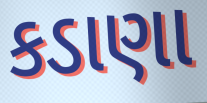
કડાણા